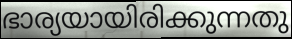
ഭാര്യയായിരിക്കുന്നതു